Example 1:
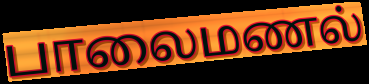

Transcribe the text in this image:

பாலைமணல்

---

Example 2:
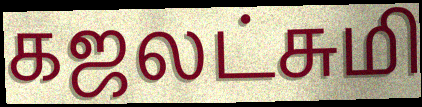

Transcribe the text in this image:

கஜலட்சுமி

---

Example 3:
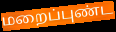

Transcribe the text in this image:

மறைப்புண்ட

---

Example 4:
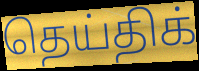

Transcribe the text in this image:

தெய்திக்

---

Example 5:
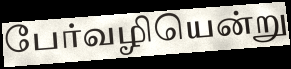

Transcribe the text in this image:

பேர்வழியென்று